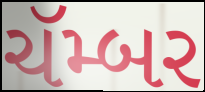
ચૅમ્બર